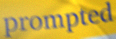
prompted